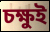
চক্ষুই